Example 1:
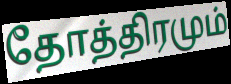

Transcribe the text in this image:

தோத்திரமும்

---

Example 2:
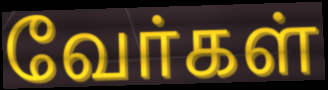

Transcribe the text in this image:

வேர்கள்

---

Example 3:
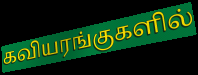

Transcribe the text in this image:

கவியரங்குகளில்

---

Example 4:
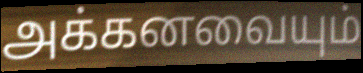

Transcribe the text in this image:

அக்கனவையும்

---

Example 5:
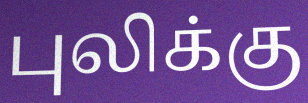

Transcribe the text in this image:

புலிக்கு